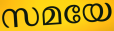
സമയേ